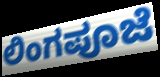
ಲಿಂಗಪೂಜೆ